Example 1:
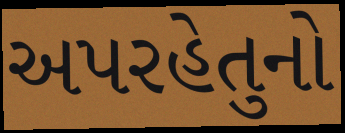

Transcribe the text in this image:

અપરહેતુનો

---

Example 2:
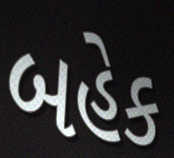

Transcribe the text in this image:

બહેક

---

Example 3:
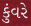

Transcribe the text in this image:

કુંવરે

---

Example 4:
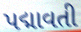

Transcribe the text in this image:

પદ્માવતી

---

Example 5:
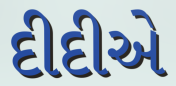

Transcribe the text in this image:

દીદીએ